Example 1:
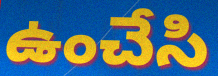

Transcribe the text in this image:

ఉంచేసి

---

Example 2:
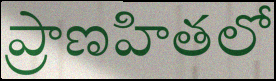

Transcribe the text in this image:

ప్రాణహితలో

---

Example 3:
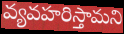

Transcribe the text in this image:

వ్యవహరిస్తామని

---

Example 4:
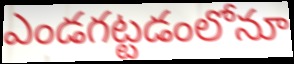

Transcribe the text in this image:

ఎండగట్టడంలోనూ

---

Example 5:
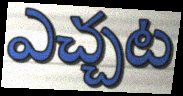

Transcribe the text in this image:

ఎచ్చట